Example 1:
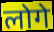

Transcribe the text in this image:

लोगे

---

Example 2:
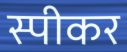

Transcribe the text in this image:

स्पीकर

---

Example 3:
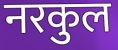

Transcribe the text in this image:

नरकुल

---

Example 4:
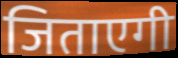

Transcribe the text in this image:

जिताएगी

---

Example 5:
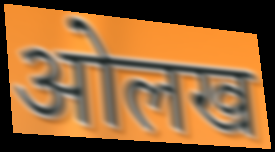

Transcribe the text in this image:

ओलख